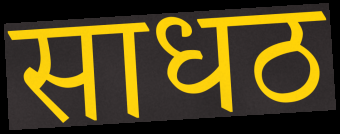
साधठ